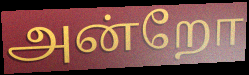
அன்றோ